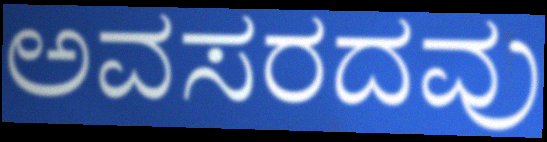
ಅವಸರದವು